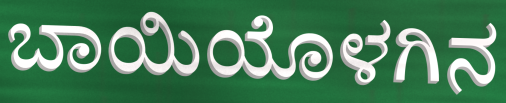
ಬಾಯಿಯೊಳಗಿನ